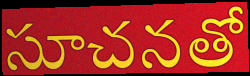
సూచనతో